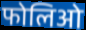
फोलिओ